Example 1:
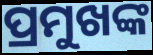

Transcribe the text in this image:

ପ୍ରମୁଖଙ୍କ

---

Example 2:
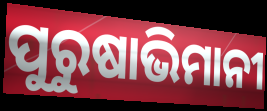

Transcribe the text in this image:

ପୁରୁଷାଭିମାନୀ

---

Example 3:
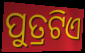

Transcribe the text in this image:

ପୁତ୍ରଟିଏ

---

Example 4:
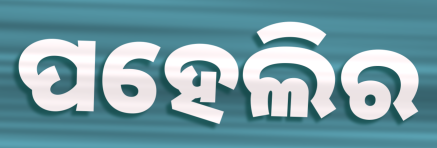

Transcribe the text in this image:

ପହେଲିର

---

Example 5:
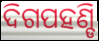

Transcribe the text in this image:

ଦିଗପହଣ୍ଡି